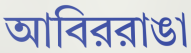
আবিররাঙা